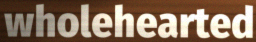
wholehearted